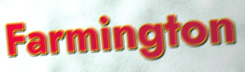
Farmington